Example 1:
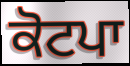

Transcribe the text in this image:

ਕੋਟਪਾ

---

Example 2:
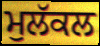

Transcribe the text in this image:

ਮੁਲੱਕਲ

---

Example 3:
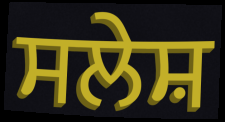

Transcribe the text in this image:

ਸਲੇਸ਼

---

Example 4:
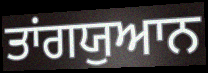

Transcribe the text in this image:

ਤਾਂਗਯੁਆਨ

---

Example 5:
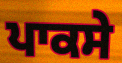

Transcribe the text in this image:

ਪਾਕਸੇ